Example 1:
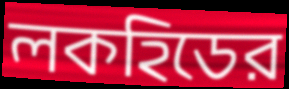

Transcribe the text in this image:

লকহিডের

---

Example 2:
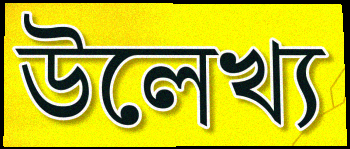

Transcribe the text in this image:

উলেখ্য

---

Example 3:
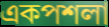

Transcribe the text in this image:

একপশলা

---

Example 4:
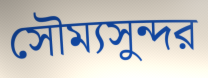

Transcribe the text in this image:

সৌম্যসুন্দর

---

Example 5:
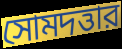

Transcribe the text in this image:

সোমদত্তার